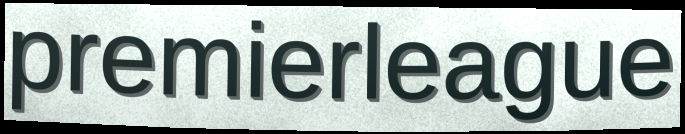
premierleague